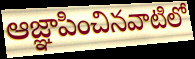
ఆజ్ఞాపించినవాటిలో